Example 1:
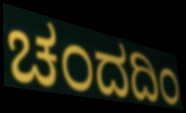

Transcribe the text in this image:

ಚಂದದಿಂ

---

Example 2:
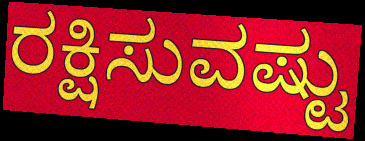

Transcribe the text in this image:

ರಕ್ಷಿಸುವಷ್ಟು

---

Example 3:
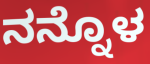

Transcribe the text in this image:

ನನ್ನೊಳ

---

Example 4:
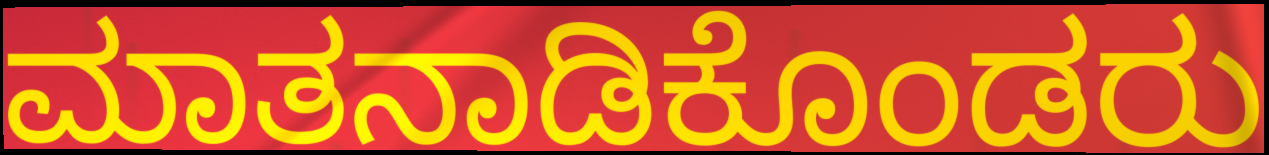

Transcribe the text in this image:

ಮಾತನಾಡಿಕೊಂಡರು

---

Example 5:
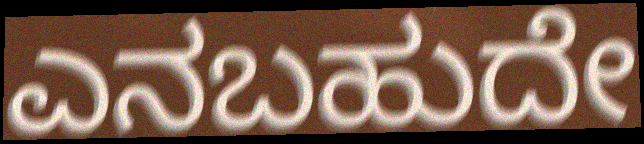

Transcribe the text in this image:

ಎನಬಹುದೇ